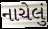
નાચેલું